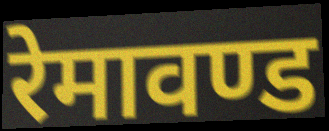
रेमावण्ड